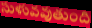
సుళువవుతుంది